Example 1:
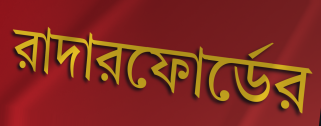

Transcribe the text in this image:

রাদারফোর্ডের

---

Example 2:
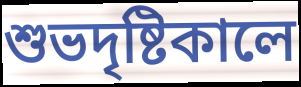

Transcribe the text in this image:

শুভদৃষ্টিকালে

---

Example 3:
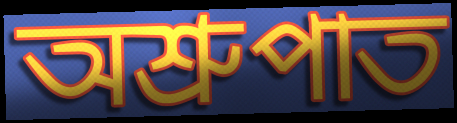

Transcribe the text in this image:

অশ্রুপাত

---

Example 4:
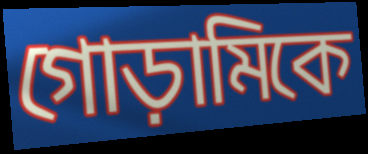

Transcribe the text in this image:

গোড়ামিকে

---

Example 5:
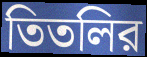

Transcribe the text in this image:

তিতলির